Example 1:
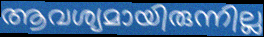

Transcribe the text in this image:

ആവശ്യമായിരുന്നില്ല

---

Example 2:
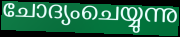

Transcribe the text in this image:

ചോദ്യംചെയ്യുന്നു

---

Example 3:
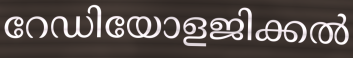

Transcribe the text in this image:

റേഡിയോളജിക്കൽ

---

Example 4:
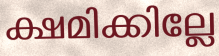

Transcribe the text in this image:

ക്ഷമിക്കില്ലേ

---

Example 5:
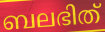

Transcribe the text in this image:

ബലഭിത്